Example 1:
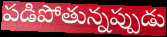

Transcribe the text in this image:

పడిపోతున్నప్పుడు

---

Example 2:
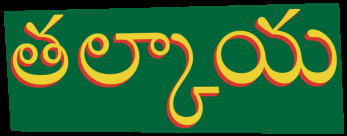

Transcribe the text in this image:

తల్కాయ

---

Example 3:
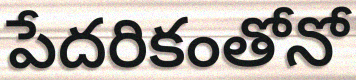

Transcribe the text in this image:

పేదరికంతోనో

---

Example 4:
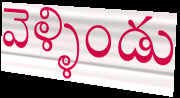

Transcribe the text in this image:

వెళ్ళిండు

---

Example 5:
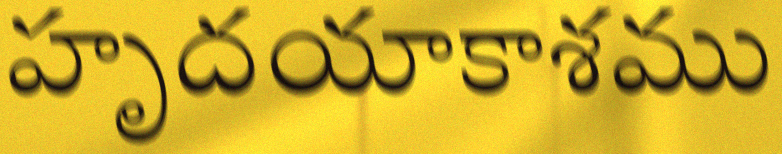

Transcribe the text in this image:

హృదయాకాశము